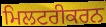
ਮਿਲਟਰੀਕਰਨ